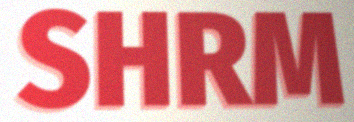
SHRM